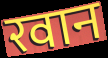
रवान